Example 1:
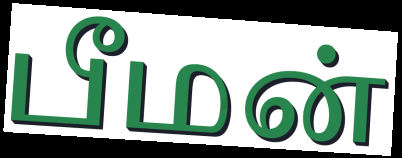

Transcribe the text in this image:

பீமன்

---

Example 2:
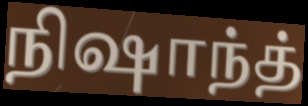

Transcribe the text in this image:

நிஷாந்த்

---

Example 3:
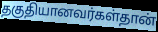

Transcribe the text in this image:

தகுதியானவர்கள்தான்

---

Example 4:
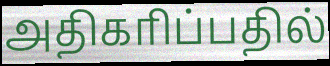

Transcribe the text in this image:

அதிகரிப்பதில்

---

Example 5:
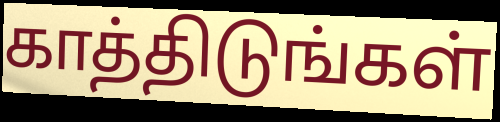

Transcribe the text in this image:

காத்திடுங்கள்